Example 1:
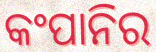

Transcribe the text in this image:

କଂପାନିର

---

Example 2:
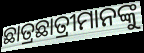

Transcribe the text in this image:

ଛାତ୍ରଛାତ୍ରୀମାନଙ୍କୁ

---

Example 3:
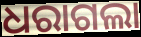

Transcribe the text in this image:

ଧରାଗଲା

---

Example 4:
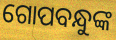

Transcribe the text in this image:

ଗୋପବନ୍ଧୁଙ୍କ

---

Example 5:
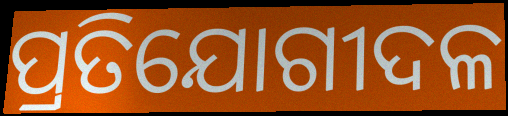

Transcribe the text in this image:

ପ୍ରତିଯୋଗୀଦଳ